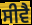
ਸੀਵੈ